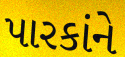
પારકાંને